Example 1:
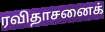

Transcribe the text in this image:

ரவிதாசனைக்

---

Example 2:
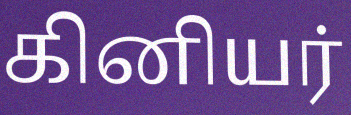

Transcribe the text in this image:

கினியர்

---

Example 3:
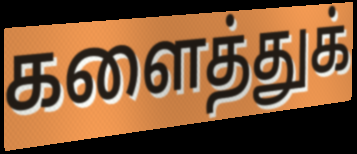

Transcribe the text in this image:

களைத்துக்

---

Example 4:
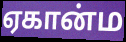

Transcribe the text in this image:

ஏகான்ம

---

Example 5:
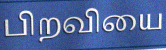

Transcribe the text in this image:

பிறவியை